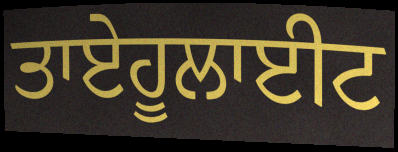
ਤਾਏਹੂਲਾਈਟ